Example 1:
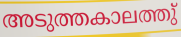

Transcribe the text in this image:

അടുത്തകാലത്തു്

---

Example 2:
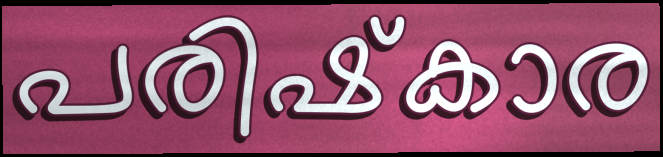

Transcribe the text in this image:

പരിഷ്‌കാര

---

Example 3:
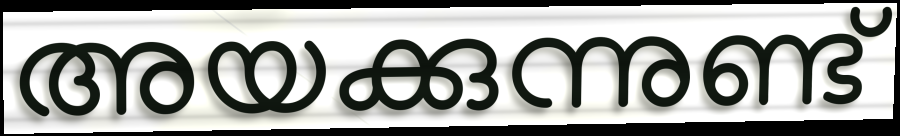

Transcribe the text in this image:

അയക്കുന്നുണ്ട്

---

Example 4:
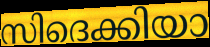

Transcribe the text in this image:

സിദെക്കിയാ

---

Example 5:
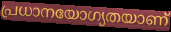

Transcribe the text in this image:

പ്രധാനയോഗ്യതയാണ്